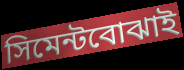
সিমেন্টবোঝাই